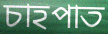
চাহপাত